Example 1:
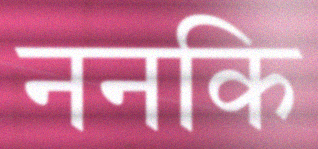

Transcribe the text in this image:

ननकि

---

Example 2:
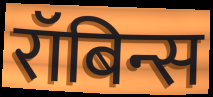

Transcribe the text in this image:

रॉबिन्स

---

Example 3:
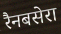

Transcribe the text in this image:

रैनबसेरा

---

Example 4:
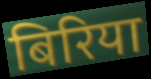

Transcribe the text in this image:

बिरिया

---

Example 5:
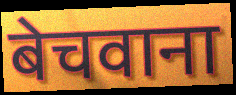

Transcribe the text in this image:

बेचवाना